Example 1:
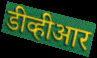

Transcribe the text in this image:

डीव्हीआर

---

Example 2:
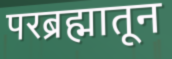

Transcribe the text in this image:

परब्रह्मातून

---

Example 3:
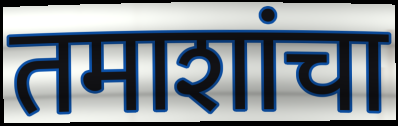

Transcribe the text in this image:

तमाशांचा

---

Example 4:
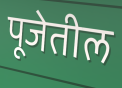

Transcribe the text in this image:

पूजेतील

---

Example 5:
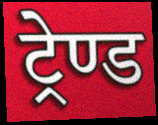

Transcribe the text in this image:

ट्रेण्ड